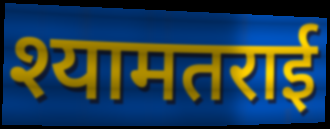
श्यामतराई